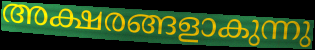
അക്ഷരങ്ങളാകുന്നു